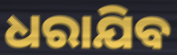
ଧରାଯିବ